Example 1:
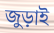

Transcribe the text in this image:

জুড়াই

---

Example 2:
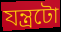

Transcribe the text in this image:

যন্ত্ৰটো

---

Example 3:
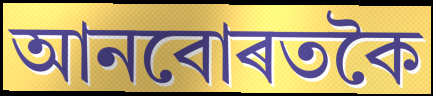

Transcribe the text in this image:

আনবোৰতকৈ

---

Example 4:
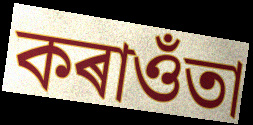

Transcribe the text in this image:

কৰাওঁতা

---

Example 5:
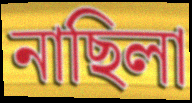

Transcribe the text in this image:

নাছিলা